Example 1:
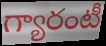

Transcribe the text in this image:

గ్యారంటీ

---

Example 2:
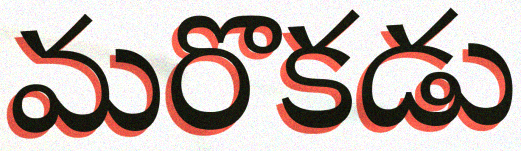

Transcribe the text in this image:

మరొకడు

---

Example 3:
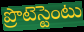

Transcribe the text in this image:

ప్రొటెస్టెంటు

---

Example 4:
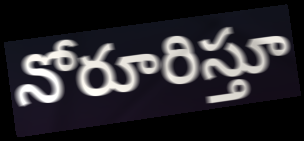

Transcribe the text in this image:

నోరూరిస్తూ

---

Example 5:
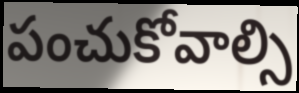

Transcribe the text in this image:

పంచుకోవాల్సి